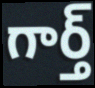
గార్త్